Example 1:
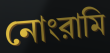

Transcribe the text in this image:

নোংরামি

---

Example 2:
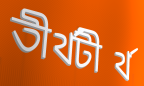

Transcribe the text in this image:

তীর্থটীর্থ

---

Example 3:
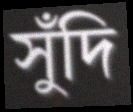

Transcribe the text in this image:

সুঁদি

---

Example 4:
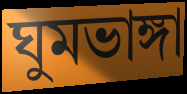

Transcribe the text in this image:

ঘুমভাঙ্গা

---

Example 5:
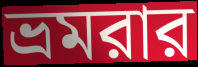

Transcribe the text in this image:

ভ্রমরার